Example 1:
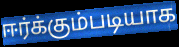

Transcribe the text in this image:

ஈர்க்கும்படியாக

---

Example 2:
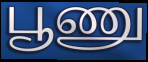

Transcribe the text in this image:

பூணு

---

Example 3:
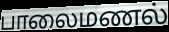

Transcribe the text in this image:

பாலைமணல்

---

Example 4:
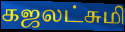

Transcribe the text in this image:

கஜலட்சுமி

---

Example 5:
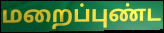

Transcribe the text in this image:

மறைப்புண்ட